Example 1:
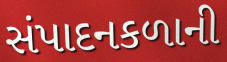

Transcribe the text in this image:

સંપાદનકળાની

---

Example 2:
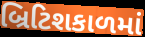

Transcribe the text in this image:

બ્રિટિશકાળમાં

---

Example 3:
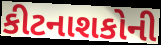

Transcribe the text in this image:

કીટનાશકોની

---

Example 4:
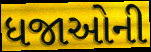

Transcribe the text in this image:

ધજાઓની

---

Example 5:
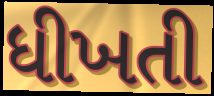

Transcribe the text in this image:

ધીખતી